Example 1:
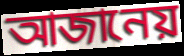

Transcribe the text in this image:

আজানেয়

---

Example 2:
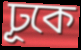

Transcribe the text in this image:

ঢূকে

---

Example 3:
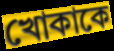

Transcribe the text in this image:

খোকাকে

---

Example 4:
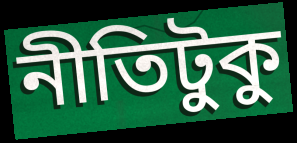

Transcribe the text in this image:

নীতিটুকু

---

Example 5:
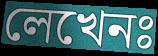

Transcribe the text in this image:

লেখেনঃ